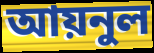
আয়নুল